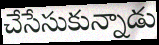
చేసేసుకున్నాడు